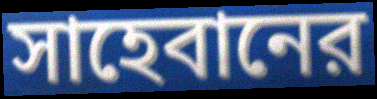
সাহেবানের